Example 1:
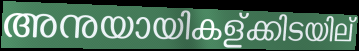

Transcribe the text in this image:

അനുയായികള്ക്കിടയില്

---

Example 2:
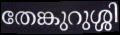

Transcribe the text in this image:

തേങ്കുറുശ്ശി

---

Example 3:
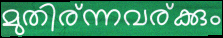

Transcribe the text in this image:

മുതിര്ന്നവര്ക്കും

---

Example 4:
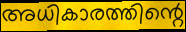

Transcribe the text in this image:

അധികാരത്തിന്റെ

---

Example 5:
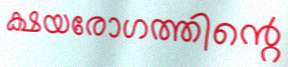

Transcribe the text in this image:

ക്ഷയരോഗത്തിന്റെ